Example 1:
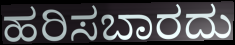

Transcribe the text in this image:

ಹರಿಸಬಾರದು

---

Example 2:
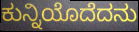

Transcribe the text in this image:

ಕುನ್ನಿಯೊದೆದನು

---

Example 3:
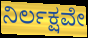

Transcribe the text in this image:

ನಿರ್ಲಕ್ಷವೇ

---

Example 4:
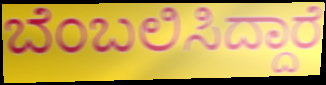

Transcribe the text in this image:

ಬೆಂಬಲಿಸಿದ್ದಾರೆ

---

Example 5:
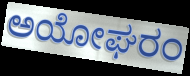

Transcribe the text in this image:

ಅಯೋಘರಂ